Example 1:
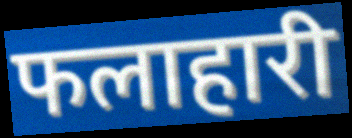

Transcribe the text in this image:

फलाहारी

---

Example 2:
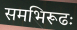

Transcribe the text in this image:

समभिरूढः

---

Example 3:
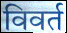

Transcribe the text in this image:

विवर्त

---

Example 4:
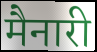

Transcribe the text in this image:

मैनारी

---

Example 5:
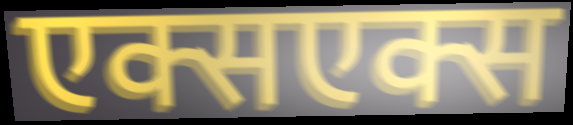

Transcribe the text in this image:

एक्सएक्स